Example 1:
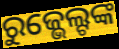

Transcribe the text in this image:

ରୁଜ୍ଭେଲ୍ଟଙ୍କ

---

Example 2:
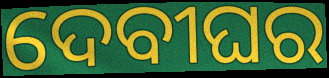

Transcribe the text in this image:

ଦେବୀଘର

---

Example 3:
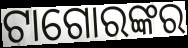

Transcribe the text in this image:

ଟାଗୋରଙ୍କର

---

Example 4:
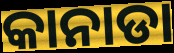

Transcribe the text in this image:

କାନାଡା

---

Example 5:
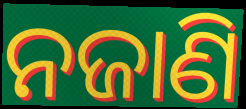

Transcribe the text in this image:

ନଜାଣି